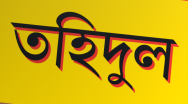
তহিদুল